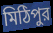
মিঠিপুর